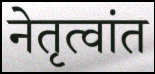
नेतृत्वांत